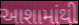
આશામાંથી